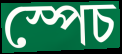
স্পেচ